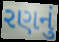
રણનું